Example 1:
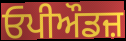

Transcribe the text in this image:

ਓਪੀਔਡਜ਼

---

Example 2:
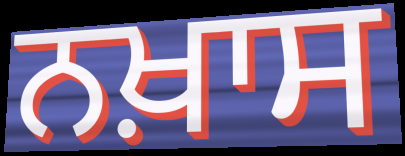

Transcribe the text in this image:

ਨਖ਼ਾਸ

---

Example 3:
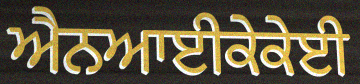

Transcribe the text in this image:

ਐਨਆਈਕੇਕੇਈ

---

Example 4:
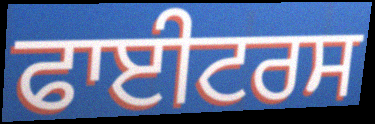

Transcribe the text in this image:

ਫਾਈਟਰਸ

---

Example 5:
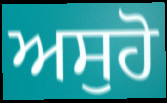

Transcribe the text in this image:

ਅਸੁਹੋ